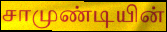
சாமுண்டியின்